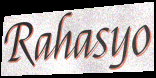
Rahasyo